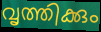
വൃത്തിക്കും